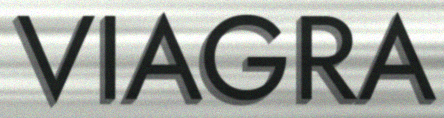
VIAGRA